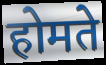
होमते